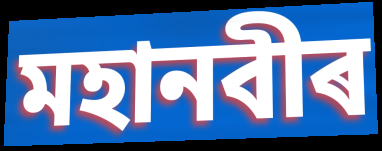
মহানবীৰ